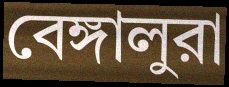
বেঙ্গালুরা